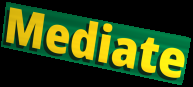
Mediate